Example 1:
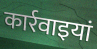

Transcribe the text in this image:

कार्रवाइयां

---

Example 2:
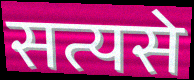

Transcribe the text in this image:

सत्यसे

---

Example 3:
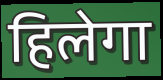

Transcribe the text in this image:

हिलेगा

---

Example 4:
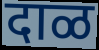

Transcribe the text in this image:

दाळ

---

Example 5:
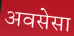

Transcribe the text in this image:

अवसेसा